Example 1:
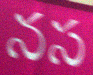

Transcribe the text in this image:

నస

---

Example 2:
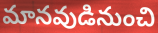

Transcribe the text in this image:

మానవుడినుంచి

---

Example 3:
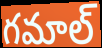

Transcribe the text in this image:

గమాల్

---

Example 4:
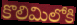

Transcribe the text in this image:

కొలిమిలోకి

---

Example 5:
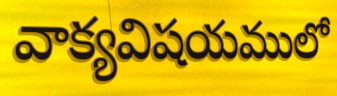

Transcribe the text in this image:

వాక్యవిషయములో